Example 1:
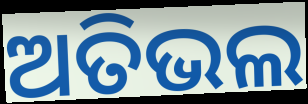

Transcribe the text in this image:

ଅତିଭଲ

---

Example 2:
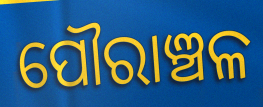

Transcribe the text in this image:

ପୌରାଞ୍ଚଳ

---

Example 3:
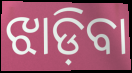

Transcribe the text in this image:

ଝାଡ଼ିବା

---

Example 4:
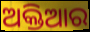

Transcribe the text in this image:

ଅକ୍ତିଆର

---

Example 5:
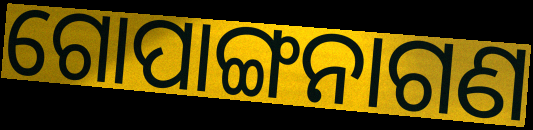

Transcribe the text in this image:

ଗୋପାଙ୍ଗନାଗଣ